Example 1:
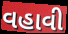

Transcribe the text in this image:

વહાવી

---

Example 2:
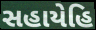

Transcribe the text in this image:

સહાયેહિ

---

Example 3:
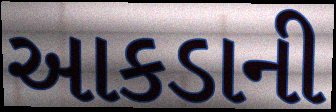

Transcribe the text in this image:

આકડાની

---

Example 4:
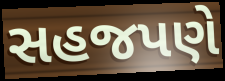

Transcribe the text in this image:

સહજપણે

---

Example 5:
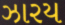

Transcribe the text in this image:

ઝારય